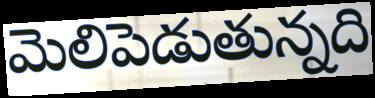
మెలిపెడుతున్నది